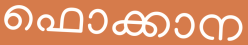
ഫൊക്കാന